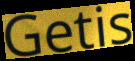
Getis